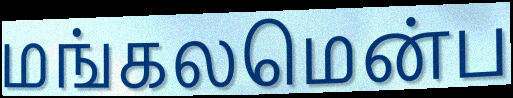
மங்கலமென்ப